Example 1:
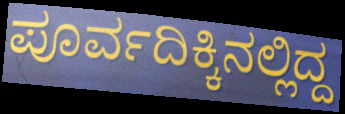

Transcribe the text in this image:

ಪೂರ್ವದಿಕ್ಕಿನಲ್ಲಿದ್ದ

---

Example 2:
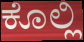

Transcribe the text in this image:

ಕೊಲ್ಲಿ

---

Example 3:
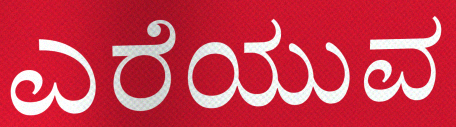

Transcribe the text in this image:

ಎರೆಯುವ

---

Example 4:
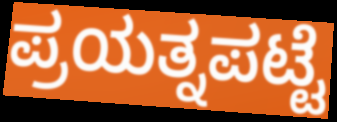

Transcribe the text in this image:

ಪ್ರಯತ್ನಪಟ್ಟೆ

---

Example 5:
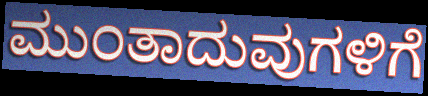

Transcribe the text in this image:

ಮುಂತಾದುವುಗಳಿಗೆ